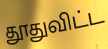
தூதுவிட்ட